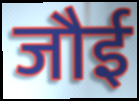
जौई